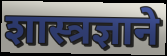
शास्त्रज्ञाने